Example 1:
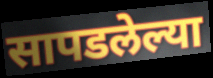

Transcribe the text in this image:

सापडलेल्या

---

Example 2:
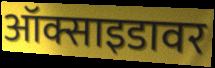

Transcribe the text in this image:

ऑक्साइडावर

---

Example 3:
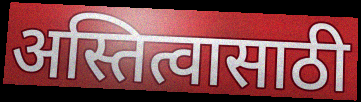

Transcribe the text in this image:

अस्तित्वासाठी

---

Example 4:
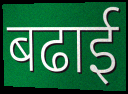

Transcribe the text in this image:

बढाई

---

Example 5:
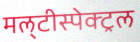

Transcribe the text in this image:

मल्टीस्पेक्ट्रल